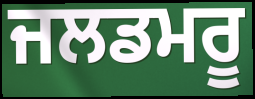
ਜਲਡਮਰੂ